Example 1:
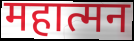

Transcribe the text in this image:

महात्मन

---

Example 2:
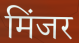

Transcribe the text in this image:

मिंजर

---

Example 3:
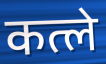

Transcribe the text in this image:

कत्ले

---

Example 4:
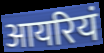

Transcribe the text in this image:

आयरियं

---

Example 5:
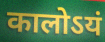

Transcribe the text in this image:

कालोऽयं